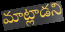
మాట్లాడని